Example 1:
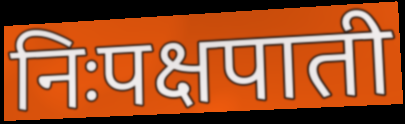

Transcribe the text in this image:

निःपक्षपाती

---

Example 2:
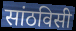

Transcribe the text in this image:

सांठविसी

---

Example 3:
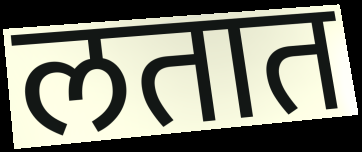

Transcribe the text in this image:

लतात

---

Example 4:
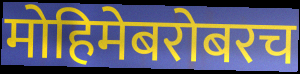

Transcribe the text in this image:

मोहिमेबरोबरच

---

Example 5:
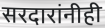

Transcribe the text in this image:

सरदारांनीही